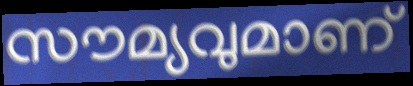
സൗമ്യവുമാണ്